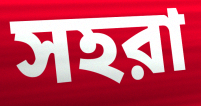
সহরা